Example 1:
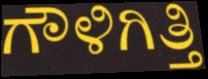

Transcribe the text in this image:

ಗೌಳಿಗಿತ್ತಿ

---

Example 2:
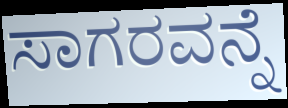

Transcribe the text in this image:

ಸಾಗರವನ್ನೆ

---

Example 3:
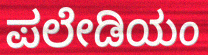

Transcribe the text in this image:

ಪಲೇಡಿಯಂ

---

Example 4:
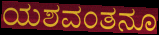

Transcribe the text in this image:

ಯಶವಂತನೂ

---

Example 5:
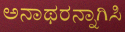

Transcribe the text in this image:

ಅನಾಥರನ್ನಾಗಿಸಿ